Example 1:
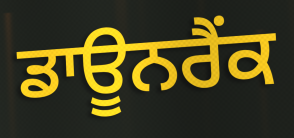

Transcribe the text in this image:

ਡਾਊਨਰੈਂਕ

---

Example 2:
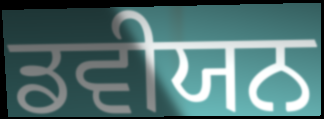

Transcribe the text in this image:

ਡਵੀਯਨ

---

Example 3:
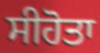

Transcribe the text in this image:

ਸੀਹੋਤਾ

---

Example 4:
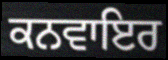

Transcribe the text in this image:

ਕਨਵਾਇਰ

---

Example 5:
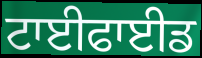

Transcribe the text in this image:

ਟਾਈਫਾਈਡ